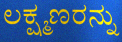
ಲಕ್ಷ್ಮಣರನ್ನು